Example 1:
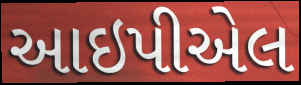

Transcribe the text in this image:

આઇપીએલ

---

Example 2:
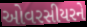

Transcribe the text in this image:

ઓવરસીયરને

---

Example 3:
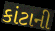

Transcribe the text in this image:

કાંટાની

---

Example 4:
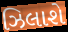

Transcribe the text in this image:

ઝિલાશે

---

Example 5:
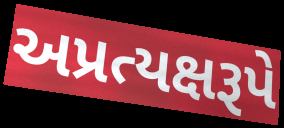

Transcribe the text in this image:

અપ્રત્યક્ષરૂપે